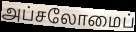
அப்சலோமைப்